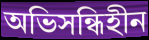
অভিসন্ধিহীন